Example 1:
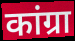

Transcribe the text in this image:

कांग्रा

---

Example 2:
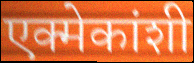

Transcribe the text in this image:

एक्मेकांशी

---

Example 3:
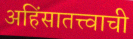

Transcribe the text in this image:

अहिंसातत्त्वाची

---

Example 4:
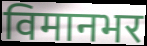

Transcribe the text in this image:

विमानभर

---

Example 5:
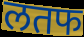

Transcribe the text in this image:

लतफ